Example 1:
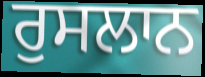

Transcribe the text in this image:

ਰੁਸਲਾਨ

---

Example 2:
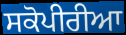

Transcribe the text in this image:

ਸਕੋਪੀਰੀਆ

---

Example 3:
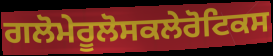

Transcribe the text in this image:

ਗਲੋਮੇਰੂਲੋਸਕਲੇਰੋਟਿਕਸ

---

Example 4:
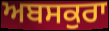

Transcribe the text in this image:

ਅਬਸਕੁਰਾ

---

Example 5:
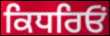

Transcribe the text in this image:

ਕਿਧਰਿਓਂ